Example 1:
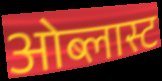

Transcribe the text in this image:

ओब्लास्ट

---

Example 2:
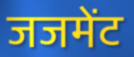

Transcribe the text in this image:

जजमेंट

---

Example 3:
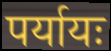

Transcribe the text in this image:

पर्यायः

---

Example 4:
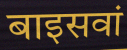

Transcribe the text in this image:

बाइसवां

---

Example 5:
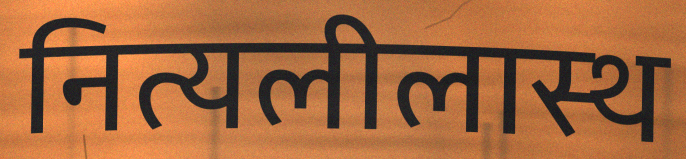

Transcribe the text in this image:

नित्यलीलास्थ